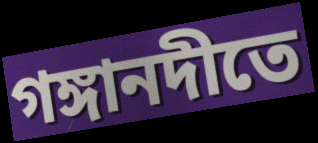
গঙ্গানদীতে